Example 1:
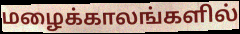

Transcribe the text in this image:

மழைக்காலங்களில்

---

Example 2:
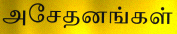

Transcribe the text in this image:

அசேதனங்கள்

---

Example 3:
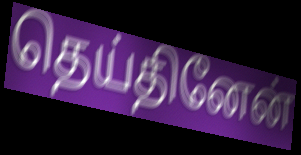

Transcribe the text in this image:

தெய்தினேன்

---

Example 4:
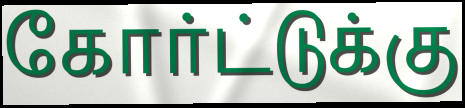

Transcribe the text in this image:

கோர்ட்டுக்கு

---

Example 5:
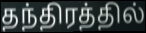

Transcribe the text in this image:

தந்திரத்தில்